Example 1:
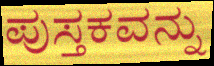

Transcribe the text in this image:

ಪುಸ್ತಕವನ್ನು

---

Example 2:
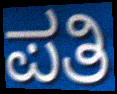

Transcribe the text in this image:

ಪತಿ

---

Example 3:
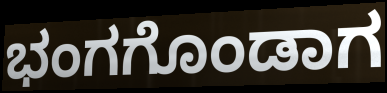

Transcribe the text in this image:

ಭಂಗಗೊಂಡಾಗ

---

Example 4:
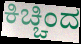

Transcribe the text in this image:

ಕಿಚ್ಚಿಂದ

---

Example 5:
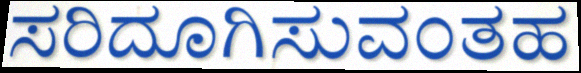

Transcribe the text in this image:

ಸರಿದೂಗಿಸುವಂತಹ